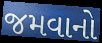
જમવાનો